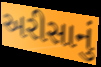
અરીસાનું